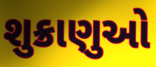
શુક્રાણુઓ